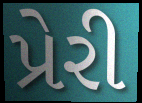
પ્રેરી